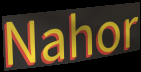
Nahor